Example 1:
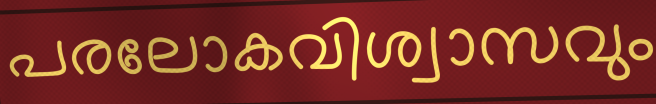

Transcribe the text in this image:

പരലോകവിശ്വാസവും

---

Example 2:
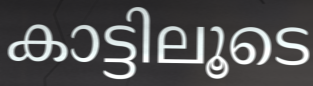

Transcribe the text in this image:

കാട്ടിലൂടെ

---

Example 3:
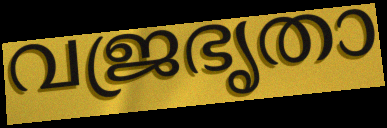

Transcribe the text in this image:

വജ്രഭൃതാ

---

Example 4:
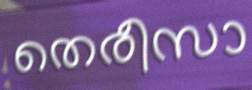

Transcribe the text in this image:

തെരീസാ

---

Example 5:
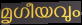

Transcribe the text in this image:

മൃഗീയവും